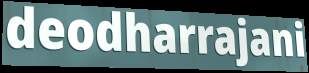
deodharrajani